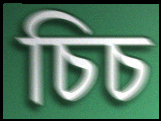
চিচ